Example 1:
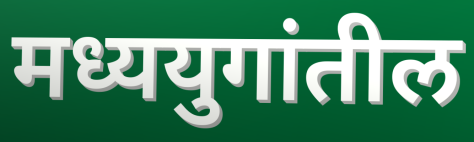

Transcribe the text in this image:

मध्ययुगांतील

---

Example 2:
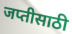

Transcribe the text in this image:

जप्तीसाठी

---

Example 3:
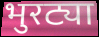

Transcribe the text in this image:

भुरट्या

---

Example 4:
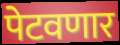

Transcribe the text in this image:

पेटवणार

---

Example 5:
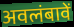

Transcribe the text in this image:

अवलंबावें